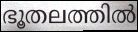
ഭൂതലത്തിൽ